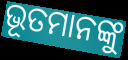
ଭୂତମାନଙ୍କୁ